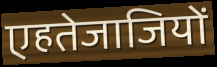
एहतेजाजियों